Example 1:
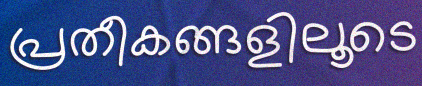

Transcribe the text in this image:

പ്രതീകങ്ങളിലൂടെ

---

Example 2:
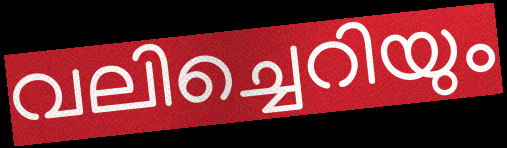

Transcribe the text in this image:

വലിച്ചെറിയും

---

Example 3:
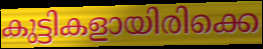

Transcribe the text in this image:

കുട്ടികളായിരിക്കെ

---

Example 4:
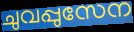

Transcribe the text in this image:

ചുവപ്പുസേന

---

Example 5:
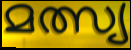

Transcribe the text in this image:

മത്സ്യ